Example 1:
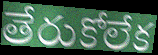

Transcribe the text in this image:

తేరుకోలేక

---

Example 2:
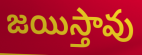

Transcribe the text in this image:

జయిస్తావు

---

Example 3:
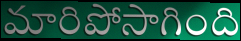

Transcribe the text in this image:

మారిపోసాగింది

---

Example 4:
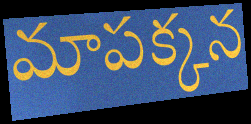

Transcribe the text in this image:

మాపక్కన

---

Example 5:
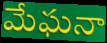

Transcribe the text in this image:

మేఘనా